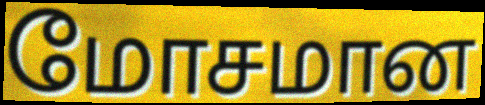
மோசமான